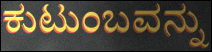
ಕುಟುಂಬವನ್ನು